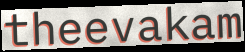
theevakam